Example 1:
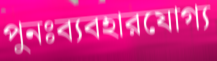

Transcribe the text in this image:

পুনঃব্যবহারযোগ্য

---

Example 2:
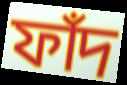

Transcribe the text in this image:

ফাঁদ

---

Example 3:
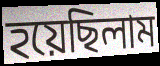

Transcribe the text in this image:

হয়েছিলাম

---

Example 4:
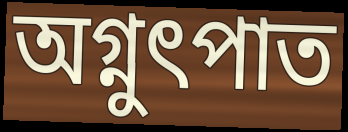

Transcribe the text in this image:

অগ্নুৎপাত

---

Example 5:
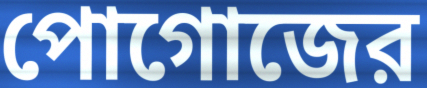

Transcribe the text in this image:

পোগোজের